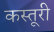
कस्तूरी